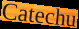
Catechu